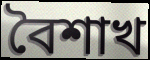
বৈশাখ